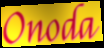
Onoda